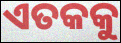
ଏତକକୁ